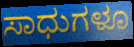
ಸಾಧುಗಳೂ